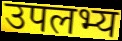
उपलभ्य